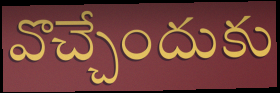
వొచ్చేందుకు